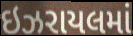
ઇઝરાયલમાં